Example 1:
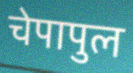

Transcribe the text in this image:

चेपापुल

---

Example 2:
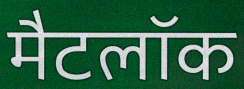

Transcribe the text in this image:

मैटलॉक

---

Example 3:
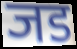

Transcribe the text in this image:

जड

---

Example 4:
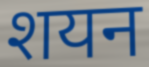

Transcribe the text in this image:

शयन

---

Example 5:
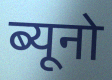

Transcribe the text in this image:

ब्यूनो